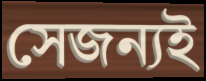
সেজন্যই